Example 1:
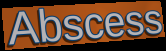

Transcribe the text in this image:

Abscess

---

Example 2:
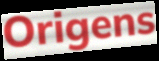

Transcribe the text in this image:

Origens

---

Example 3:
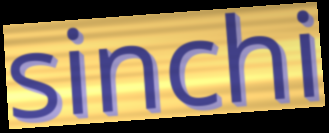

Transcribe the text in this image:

sinchi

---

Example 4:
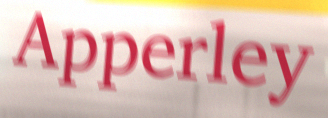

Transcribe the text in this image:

Apperley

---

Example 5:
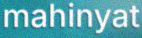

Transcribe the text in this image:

mahinyat